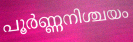
പൂർണ്ണനിശ്ചയം